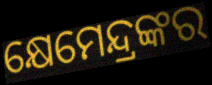
କ୍ଷେମେନ୍ଦ୍ରଙ୍କର